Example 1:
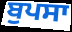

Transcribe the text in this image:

ਬੁਪਸਾ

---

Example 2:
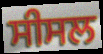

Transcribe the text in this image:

ਸੀਸਲ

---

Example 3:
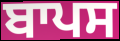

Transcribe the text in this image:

ਬਾਪਸ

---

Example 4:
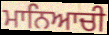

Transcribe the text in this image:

ਮਾਨਿਆਚੀ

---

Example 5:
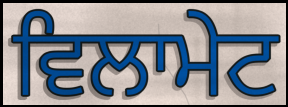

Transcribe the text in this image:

ਵਿਲਾਮੇਟ